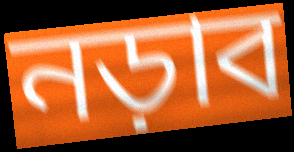
নড়াব